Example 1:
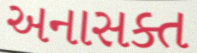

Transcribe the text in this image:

અનાસક્ત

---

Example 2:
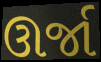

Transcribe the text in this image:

ઊર્જા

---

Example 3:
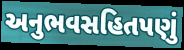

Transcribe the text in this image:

અનુભવસહિતપણું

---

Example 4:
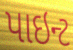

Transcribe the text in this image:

પાઇન્ટ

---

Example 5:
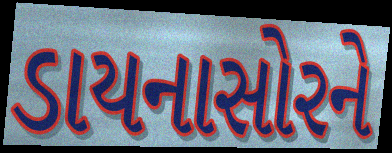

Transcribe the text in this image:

ડાયનાસોરને